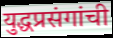
युद्धप्रसंगांची